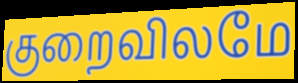
குறைவிலமே